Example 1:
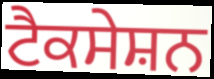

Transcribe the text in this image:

ਟੈਕਸੇਸ਼ਨ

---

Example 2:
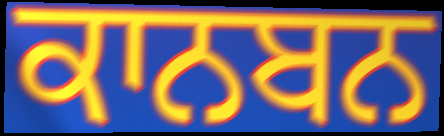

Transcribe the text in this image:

ਕਾਨਬਨ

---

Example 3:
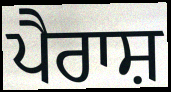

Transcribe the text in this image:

ਪੈਰਾਸ਼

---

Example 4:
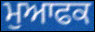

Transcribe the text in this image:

ਮੁਆਫਕ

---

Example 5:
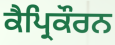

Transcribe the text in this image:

ਕੈਪ੍ਰਿਕੌਰਨ